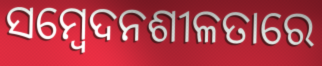
ସମ୍ବେଦନଶୀଳତାରେ